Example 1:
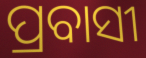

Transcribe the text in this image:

ପ୍ରବାସୀ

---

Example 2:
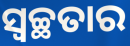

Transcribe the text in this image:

ସ୍ଵଚ୍ଛତାର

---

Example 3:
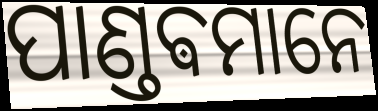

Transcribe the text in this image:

ପାଣ୍ଡଵମାନେ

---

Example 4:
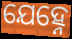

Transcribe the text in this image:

ଯେହ୍ନେ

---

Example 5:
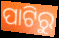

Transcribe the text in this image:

ପାଟିରୁ